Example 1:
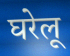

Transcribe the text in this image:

घरेलू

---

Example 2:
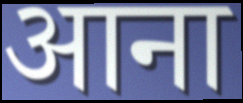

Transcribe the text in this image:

आना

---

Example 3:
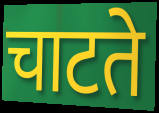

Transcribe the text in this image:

चाटते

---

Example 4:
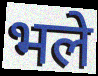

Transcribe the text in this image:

भले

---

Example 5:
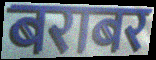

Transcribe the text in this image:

बराबर